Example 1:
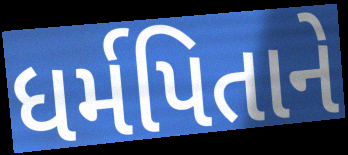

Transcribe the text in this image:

ધર્મપિતાને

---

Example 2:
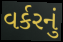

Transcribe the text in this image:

વર્કરનું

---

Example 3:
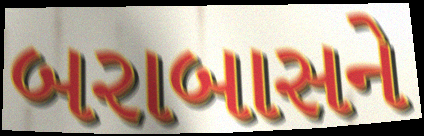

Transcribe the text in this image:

બરાબાસને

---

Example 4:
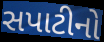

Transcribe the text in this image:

સપાટીનો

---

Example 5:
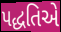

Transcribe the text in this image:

પદ્ધતિએ